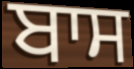
ਬਾਸ